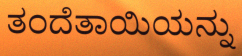
ತಂದೆತಾಯಿಯನ್ನು